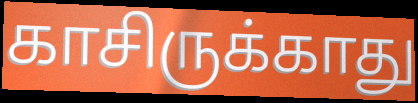
காசிருக்காது